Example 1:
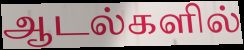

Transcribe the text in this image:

ஆடல்களில்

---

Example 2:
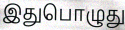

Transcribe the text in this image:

இதுபொழுது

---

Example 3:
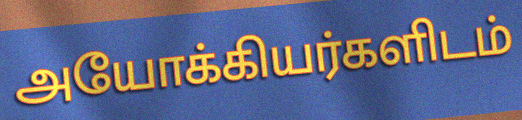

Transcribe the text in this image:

அயோக்கியர்களிடம்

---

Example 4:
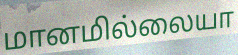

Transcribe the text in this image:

மானமில்லையா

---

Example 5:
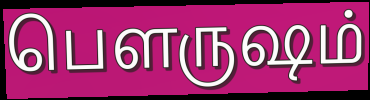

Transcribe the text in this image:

பௌருஷம்